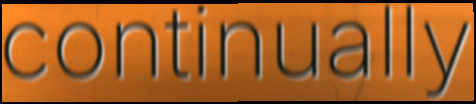
continually